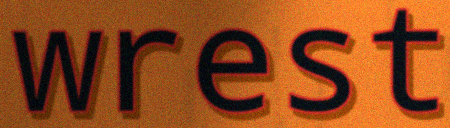
wrest